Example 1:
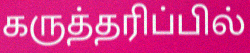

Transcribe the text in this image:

கருத்தரிப்பில்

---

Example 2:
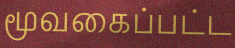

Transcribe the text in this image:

மூவகைப்பட்ட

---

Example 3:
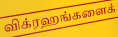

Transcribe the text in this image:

விக்ரஹங்களைக்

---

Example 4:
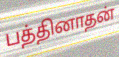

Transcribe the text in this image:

பத்தினாதன்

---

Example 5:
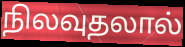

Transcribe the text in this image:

நிலவுதலால்